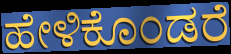
ಹೇಳಿಕೊಂಡರೆ